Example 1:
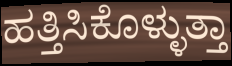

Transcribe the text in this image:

ಹತ್ತಿಸಿಕೊಳ್ಳುತ್ತಾ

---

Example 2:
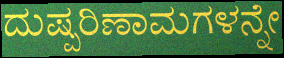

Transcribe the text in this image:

ದುಷ್ಪರಿಣಾಮಗಳನ್ನೇ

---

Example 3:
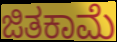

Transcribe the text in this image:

ಜಿತಕಾಮೆ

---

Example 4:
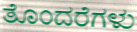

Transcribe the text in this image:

ತೊಂದರೆಗಳು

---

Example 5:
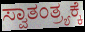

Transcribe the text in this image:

ಸ್ವಾತಂತ್ರ್ಯಕ್ಕೆ